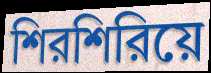
শিরশিরিয়ে